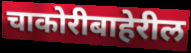
चाकोरीबाहेरील